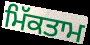
ਮਿੱਕਤਾਮ